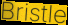
Bristle